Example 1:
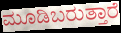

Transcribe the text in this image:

ಮೂಡಿಬರುತ್ತಾರೆ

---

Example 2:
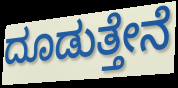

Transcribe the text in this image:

ದೂಡುತ್ತೇನೆ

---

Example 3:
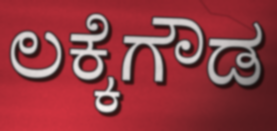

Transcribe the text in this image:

ಲಕ್ಕೆಗೌಡ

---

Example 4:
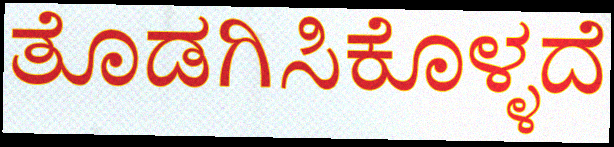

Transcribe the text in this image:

ತೊಡಗಿಸಿಕೊಳ್ಳದೆ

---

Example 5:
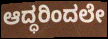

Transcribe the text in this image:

ಆದ್ಧರಿಂದಲೇ